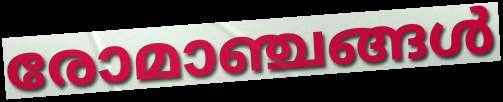
രോമാഞ്ചങ്ങൾ